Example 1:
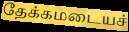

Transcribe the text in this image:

தேக்கமடையச்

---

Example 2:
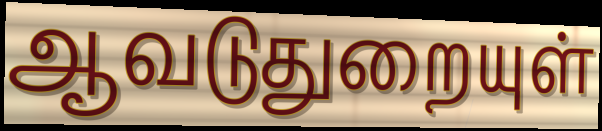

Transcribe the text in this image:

ஆவடுதுறையுள்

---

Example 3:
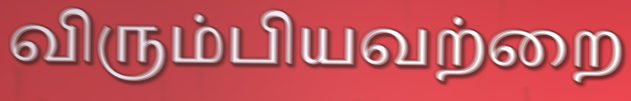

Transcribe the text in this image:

விரும்பியவற்றை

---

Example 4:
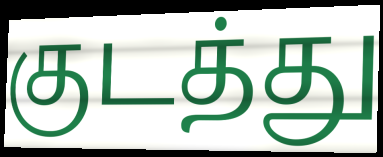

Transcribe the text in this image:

குடத்து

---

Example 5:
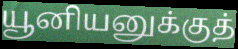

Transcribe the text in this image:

யூனியனுக்குத்